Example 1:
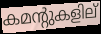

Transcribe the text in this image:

കമന്റുകളില്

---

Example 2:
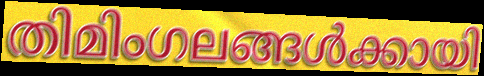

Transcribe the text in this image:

തിമിംഗലങ്ങൾക്കായി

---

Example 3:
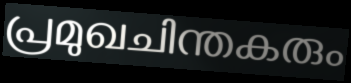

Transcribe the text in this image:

പ്രമുഖചിന്തകരും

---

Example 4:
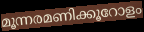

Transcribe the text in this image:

മൂന്നരമണിക്കൂറോളം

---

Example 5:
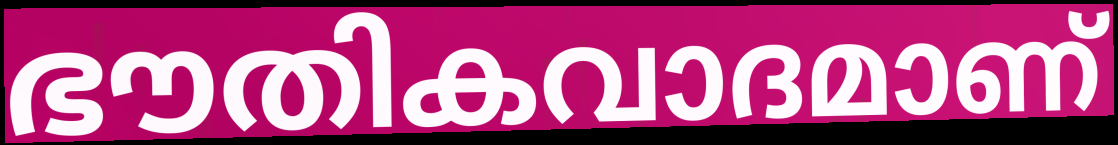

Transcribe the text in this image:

ഭൗതികവാദമാണ്